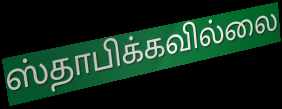
ஸ்தாபிக்கவில்லை